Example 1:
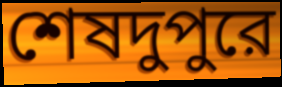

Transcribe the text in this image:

শেষদুপুরে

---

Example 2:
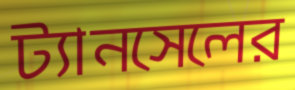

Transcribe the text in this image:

ট্যানসেলের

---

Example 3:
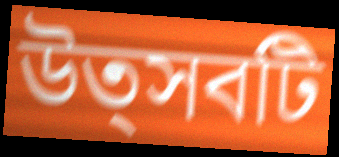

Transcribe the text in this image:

উত্সবটি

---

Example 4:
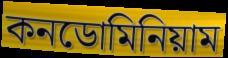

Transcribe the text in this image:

কনডোমিনিয়াম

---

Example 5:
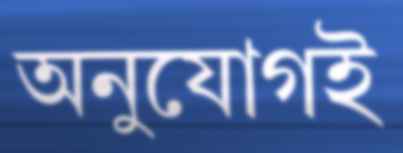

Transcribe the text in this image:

অনুযোগই